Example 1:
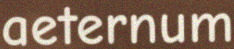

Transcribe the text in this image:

aeternum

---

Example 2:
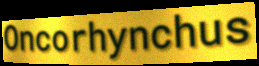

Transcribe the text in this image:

Oncorhynchus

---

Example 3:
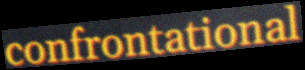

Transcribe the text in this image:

confrontational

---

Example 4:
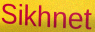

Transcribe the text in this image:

Sikhnet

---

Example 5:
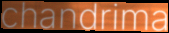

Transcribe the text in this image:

chandrima